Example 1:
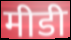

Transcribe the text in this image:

मीडी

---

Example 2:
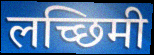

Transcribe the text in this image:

लच्छिमी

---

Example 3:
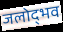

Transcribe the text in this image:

जलोद्भव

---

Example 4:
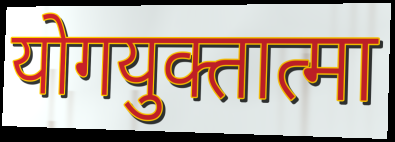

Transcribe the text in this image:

योगयुक्तात्मा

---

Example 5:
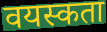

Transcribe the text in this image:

वयस्कता